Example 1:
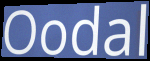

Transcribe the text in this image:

Oodal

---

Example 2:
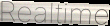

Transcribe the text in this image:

Realtime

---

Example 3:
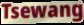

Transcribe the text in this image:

Tsewang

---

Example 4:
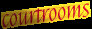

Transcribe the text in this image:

courtrooms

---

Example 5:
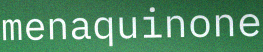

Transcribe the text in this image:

menaquinone